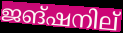
ജങ്ഷനില്